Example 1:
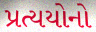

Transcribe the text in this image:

પ્રત્યયોનો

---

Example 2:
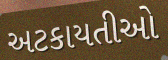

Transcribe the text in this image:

અટકાયતીઓ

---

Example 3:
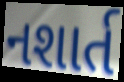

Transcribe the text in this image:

નશાર્ત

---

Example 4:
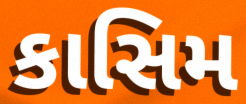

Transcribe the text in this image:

કાસિમ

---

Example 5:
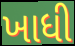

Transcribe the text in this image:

ખાધી